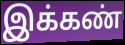
இக்கண்